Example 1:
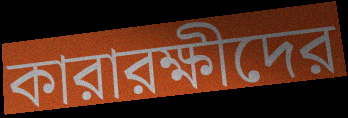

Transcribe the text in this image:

কারারক্ষীদের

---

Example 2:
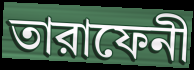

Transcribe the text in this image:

তারাফেনী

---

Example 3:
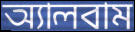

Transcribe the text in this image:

অ্যালবাম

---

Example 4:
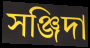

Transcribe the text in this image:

সঞ্জিদা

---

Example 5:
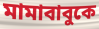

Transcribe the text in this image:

মামাবাবুকে